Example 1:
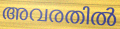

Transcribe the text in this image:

അവരതിൽ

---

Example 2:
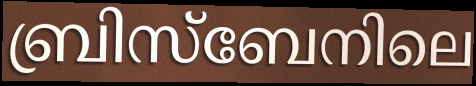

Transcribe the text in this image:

ബ്രിസ്ബേനിലെ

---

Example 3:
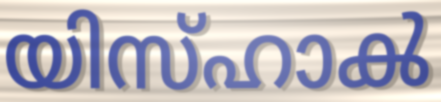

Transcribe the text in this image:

യിസ്ഹാൿ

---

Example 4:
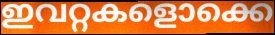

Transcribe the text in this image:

ഇവറ്റകളൊക്കെ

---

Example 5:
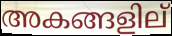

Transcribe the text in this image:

അകങ്ങളില്